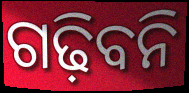
ଗଢ଼ିବନି